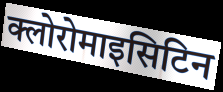
क्लोरोमाइसिटिन